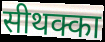
सीथक्का